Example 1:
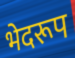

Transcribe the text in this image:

भेदरूप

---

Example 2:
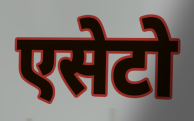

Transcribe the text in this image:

एसेटो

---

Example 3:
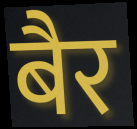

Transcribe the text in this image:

बैर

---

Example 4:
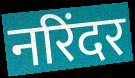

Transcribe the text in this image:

नरिंदर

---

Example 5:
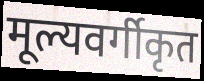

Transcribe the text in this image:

मूल्यवर्गीकृत